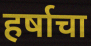
हर्षाचा